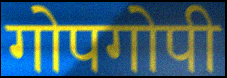
गोपगोपी